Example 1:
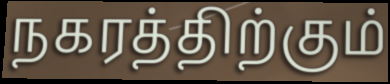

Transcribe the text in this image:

நகரத்திற்கும்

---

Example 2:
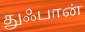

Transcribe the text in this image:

துஃபான்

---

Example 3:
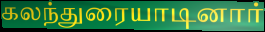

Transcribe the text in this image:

கலந்துரையாடினார்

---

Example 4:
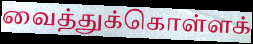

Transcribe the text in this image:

வைத்துக்கொள்ளக்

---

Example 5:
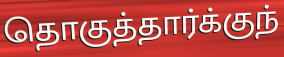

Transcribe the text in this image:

தொகுத்தார்க்குந்